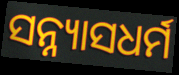
ସନ୍ନ୍ୟାସଧର୍ମ